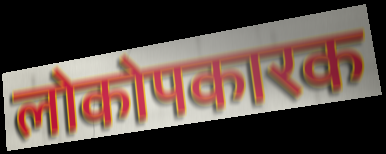
लोकोपकारक